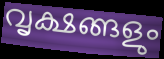
വൃക്ഷങ്ങളും